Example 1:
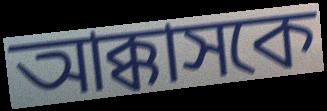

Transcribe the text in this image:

আক্কাসকে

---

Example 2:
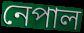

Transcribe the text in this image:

নেপাল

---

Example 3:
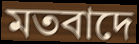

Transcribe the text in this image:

মতবাদে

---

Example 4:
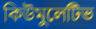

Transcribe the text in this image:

কিউমুলেটিভ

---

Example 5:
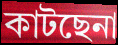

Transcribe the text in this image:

কাটছেনা